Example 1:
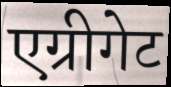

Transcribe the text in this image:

एग्रीगेट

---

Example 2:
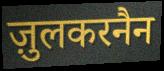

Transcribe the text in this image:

ज़ुलकरनैन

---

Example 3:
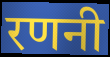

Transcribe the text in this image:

रणनी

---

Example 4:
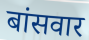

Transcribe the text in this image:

बांसवार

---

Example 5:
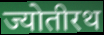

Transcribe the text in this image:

ज्योतीरथ